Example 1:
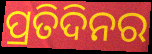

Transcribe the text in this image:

ପ୍ରତିଦିନର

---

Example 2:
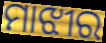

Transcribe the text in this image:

ମାଝୀର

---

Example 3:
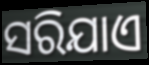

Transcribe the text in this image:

ସରିଯାଏ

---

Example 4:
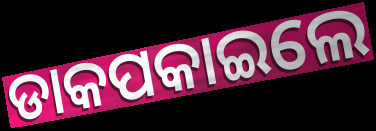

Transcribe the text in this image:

ଡାକପକାଇଲେ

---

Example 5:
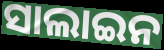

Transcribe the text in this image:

ସାଲାଇନ